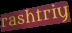
rashtriy